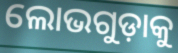
ଲୋଭଗୁଡ଼ାକୁ